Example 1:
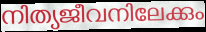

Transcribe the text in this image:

നിത്യജീവനിലേക്കും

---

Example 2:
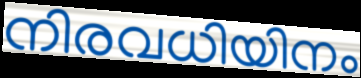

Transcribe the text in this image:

നിരവധിയിനം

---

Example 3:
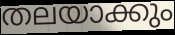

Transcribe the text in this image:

തലയാക്കും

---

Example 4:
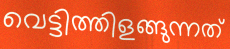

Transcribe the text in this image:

വെട്ടിത്തിളങ്ങുന്നത്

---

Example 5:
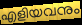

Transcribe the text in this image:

എളിയവനും